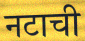
नटाची